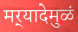
मर्यादेमुळं